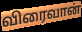
விரைவான்